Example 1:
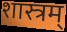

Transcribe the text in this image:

शास्त्रम्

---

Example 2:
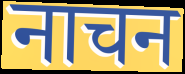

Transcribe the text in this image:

नाचन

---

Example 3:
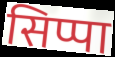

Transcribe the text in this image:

सिप्पा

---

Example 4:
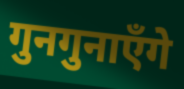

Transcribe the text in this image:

गुनगुनाएँगे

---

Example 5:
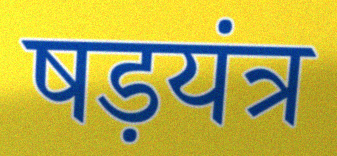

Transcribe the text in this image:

षड़यंत्र